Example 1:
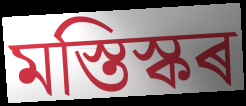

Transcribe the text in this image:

মস্তিস্কৰ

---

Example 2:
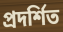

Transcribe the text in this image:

প্ৰদৰ্শিত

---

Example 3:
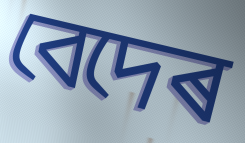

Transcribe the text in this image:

বেদেৰ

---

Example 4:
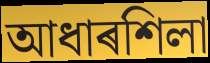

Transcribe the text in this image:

আধাৰশিলা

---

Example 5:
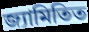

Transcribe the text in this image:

জ্যামিতিত